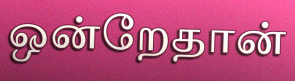
ஒன்றேதான்